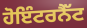
ਹੋਇੰਟਰਨੈੱਟ